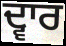
ਦ੍ਵਾਰ